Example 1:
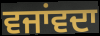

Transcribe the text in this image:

ਵਜਾਂਵਦਾ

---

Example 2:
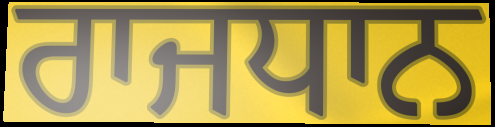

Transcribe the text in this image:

ਰਾਜਧਾਨ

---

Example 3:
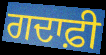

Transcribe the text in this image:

ਗਦਾਫ਼ੀ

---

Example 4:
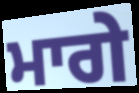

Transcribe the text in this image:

ਮਾਗੇ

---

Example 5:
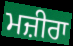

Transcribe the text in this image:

ਮਜ਼ੀਰਾ